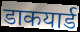
डाकयार्ड